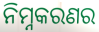
ନିମ୍ନକରଣର